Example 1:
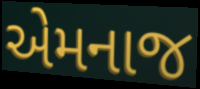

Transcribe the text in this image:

એમનાજ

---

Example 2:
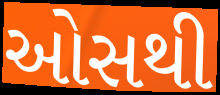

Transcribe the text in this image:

ઓસથી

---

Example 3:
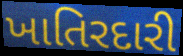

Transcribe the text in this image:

ખાતિરદારી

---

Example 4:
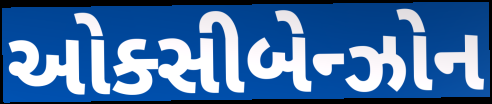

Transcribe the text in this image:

ઓક્સીબેન્ઝોન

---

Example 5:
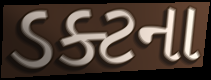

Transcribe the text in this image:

ડક્ટના